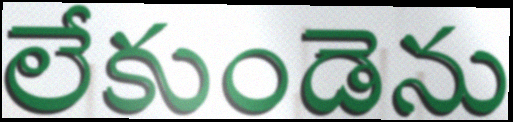
లేకుండెను